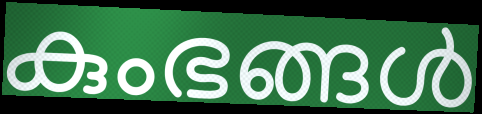
കുംഭങ്ങൾ